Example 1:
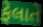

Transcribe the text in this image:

ફેલાતે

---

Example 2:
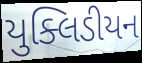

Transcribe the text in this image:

યુક્લિડીયન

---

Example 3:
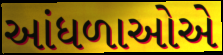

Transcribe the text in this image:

આંધળાઓએ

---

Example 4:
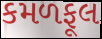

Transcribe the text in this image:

કમળફૂલ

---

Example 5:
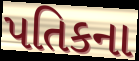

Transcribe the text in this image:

પતિકના